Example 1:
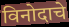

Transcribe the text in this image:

विनोदाचे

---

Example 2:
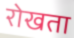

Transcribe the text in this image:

रोखता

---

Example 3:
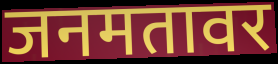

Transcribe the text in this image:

जनमतावर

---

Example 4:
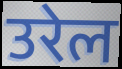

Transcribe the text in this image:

उरेल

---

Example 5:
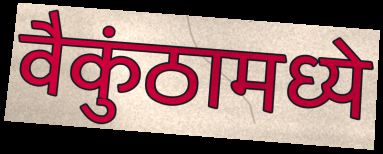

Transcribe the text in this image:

वैकुंठामध्ये